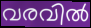
വരവിൽ